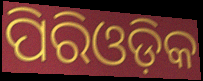
ପିରିଓଡ଼ିକ